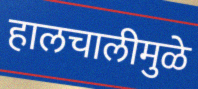
हालचालीमुळे